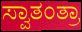
ಸ್ವಾತಂತ್ರಾ